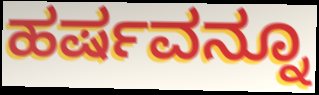
ಹರ್ಷವನ್ನೂ